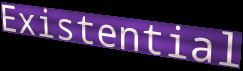
Existential